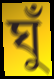
ঘুঁ